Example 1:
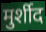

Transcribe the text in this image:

मुर्शीद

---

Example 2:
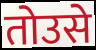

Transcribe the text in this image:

तोउसे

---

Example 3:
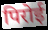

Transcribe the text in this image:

पिरोई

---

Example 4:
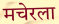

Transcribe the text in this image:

मचेरला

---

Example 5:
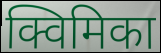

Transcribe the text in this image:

क्विमिका